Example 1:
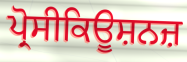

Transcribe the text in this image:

ਪ੍ਰੋਸੀਕਿਊਸ਼ਨਜ਼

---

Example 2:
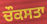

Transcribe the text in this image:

ਚੌਕਸਤਾ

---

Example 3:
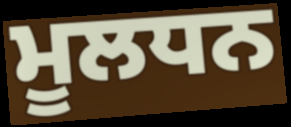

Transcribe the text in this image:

ਮੂਲਧਨ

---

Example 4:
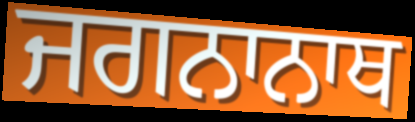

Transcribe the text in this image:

ਜਗਨਾਨਾਥ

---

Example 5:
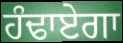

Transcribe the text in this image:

ਹੰਢਾਏਗਾ